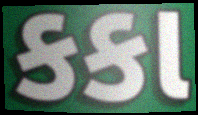
કકા